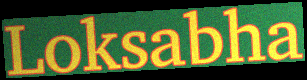
Loksabha